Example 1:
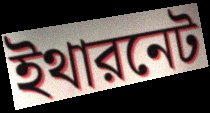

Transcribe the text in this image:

ইথারনেট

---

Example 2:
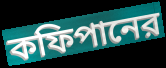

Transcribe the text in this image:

কফিপানের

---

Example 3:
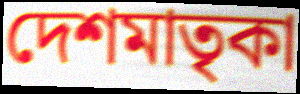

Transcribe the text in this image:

দেশমাতৃকা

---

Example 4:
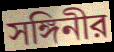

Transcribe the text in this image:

সঙ্গিনীর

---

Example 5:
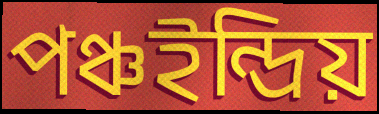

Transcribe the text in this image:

পঞ্চইন্দ্রিয়